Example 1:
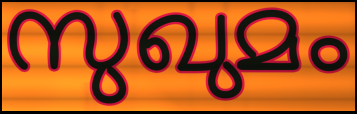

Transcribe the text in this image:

സുഖുമം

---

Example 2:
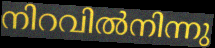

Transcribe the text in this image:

നിറവിൽനിന്നു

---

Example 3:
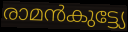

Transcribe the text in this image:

രാമൻകുട്ട്യേ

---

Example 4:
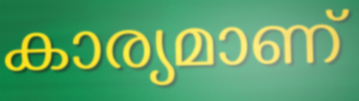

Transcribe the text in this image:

കാര്യമാണ്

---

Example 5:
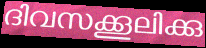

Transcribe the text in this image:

ദിവസക്കൂലിക്കു